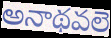
అనాథవలె